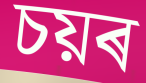
চয়ৰ